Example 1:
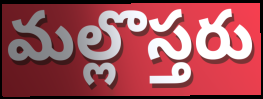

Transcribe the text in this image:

మల్లొస్తరు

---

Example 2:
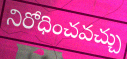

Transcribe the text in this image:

నిరోధించవచ్చు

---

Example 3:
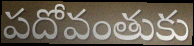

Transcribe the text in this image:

పదోవంతుకు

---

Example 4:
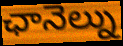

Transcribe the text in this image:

ఛానెల్ను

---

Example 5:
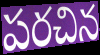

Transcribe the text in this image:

పరచిన